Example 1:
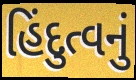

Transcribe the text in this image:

હિંદુત્વનું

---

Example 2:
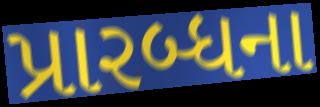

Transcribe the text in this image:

પ્રારબ્ધના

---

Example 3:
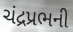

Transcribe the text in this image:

ચંદ્રપ્રભની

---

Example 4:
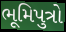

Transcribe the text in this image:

ભૂમિપુત્રો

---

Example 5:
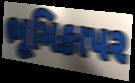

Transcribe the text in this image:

ભૂમિકાપર